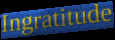
Ingratitude